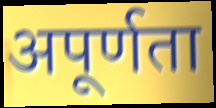
अपूर्णता